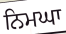
ਨਿਮਘਾ